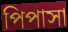
পিপাসা